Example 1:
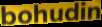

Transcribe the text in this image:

bohudin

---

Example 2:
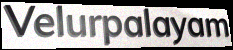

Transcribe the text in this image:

Velurpalayam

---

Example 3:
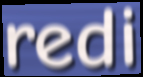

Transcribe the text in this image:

redi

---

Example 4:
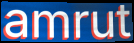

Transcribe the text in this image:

amrut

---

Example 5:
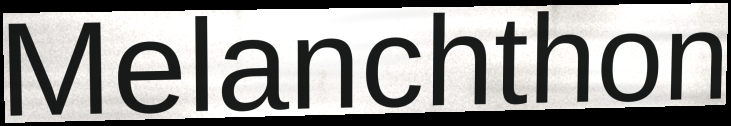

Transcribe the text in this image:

Melanchthon